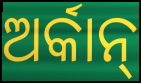
ଅର୍କାନ୍